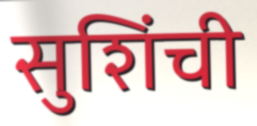
सुशिंची